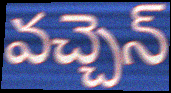
వచ్చెన్